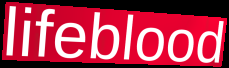
lifeblood